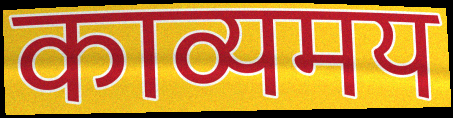
काव्यमय